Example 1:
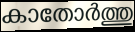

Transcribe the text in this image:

കാതോർത്തു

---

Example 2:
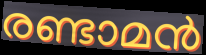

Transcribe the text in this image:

രണ്ടാമൻ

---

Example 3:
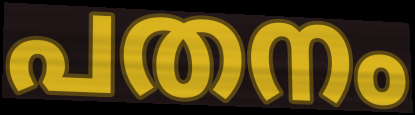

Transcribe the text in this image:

പതനം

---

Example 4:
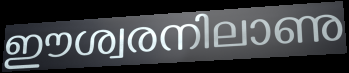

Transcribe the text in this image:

ഈശ്വരനിലാണു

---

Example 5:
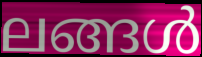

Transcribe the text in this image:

ലങ്ങൾ